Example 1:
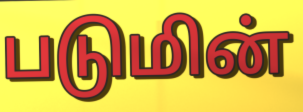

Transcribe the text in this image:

படுமின்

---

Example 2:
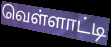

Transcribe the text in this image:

வெள்ளாட்டி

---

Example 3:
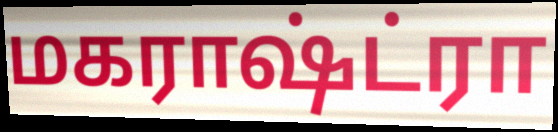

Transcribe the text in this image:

மகராஷ்ட்ரா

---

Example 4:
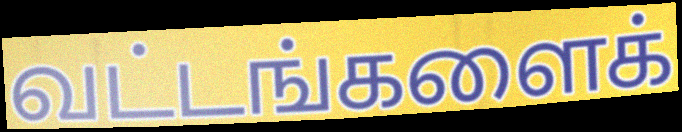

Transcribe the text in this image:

வட்டங்களைக்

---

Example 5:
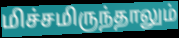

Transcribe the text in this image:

மிச்சமிருந்தாலும்